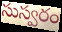
సుస్వరం